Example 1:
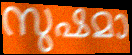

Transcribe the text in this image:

സുഷമാ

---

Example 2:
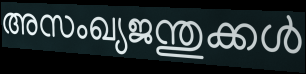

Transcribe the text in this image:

അസംഖ്യജന്തുക്കൾ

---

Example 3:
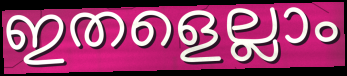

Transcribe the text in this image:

ഇതളെല്ലാം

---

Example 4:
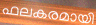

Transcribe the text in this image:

ഫലകരമായി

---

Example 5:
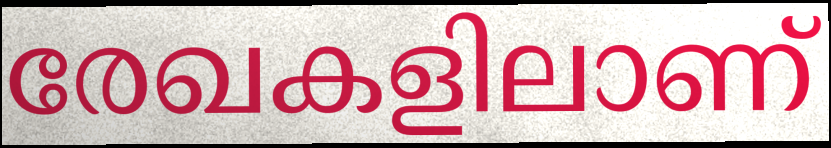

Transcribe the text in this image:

രേഖകളിലാണ്